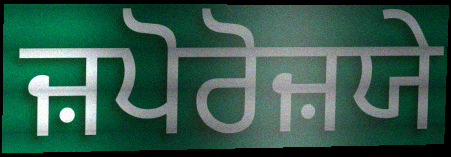
ਜ਼ਪੋਰੋਜ਼ਯੇ